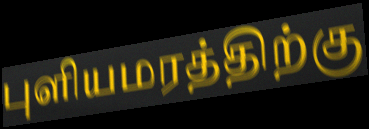
புளியமரத்திற்கு